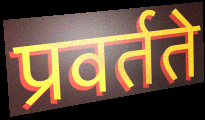
प्रवर्तते